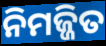
ନିମଜ୍ଜିତ